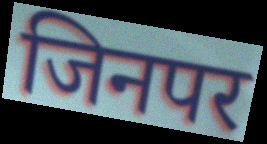
जिनपर